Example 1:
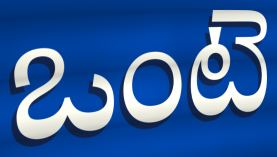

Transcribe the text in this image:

ఒంటె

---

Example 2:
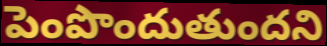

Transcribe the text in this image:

పెంపొందుతుందని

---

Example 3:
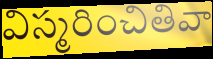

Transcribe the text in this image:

విస్మరించితివా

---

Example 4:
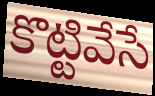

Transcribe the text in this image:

కొట్టివేసే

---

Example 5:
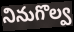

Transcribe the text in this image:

నినుగొల్వ